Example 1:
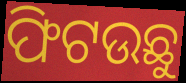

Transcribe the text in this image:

ଫିଟଉଛୁ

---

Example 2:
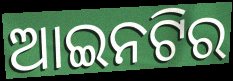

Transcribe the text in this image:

ଆଇନଟିର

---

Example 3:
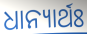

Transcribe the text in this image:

ଧାନ୍ୟାର୍ଥଃ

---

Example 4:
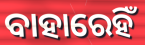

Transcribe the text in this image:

ବାହାରେହିଁ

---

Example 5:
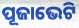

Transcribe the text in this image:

ପୂଜାଭେଟି